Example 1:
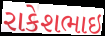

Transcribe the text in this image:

રાકેશભાઇ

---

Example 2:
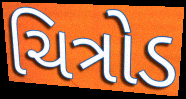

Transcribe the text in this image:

ચિત્રોડ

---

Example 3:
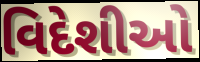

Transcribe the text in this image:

વિદેશીઓ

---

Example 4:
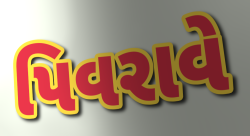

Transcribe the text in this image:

પિવરાવે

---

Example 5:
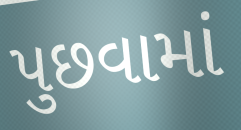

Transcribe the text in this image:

પુછવામાં